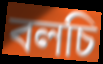
বলচি